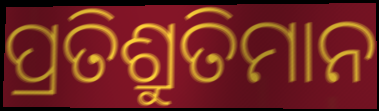
ପ୍ରତିଶ୍ରୁତିମାନ